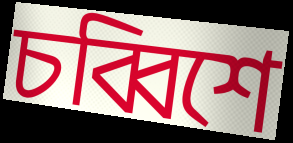
চব্বিশে